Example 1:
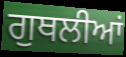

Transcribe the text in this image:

ਗੁਥਲੀਆਂ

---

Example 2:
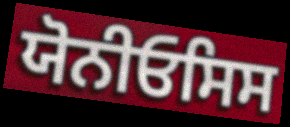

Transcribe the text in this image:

ਯੋਨੀਓਸਿਸ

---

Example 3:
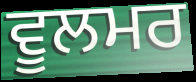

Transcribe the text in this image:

ਵੂਲਮਰ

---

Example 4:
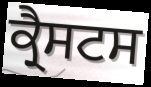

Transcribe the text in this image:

ਕ੍ਰੈਸਟਸ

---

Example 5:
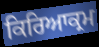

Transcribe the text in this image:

ਕਿਰਿਆਕ੍ਰਮ